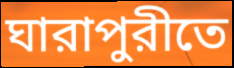
ঘারাপুরীতে